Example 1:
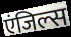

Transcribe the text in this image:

एंजिल्स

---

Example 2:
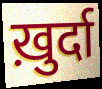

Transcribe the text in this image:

ख़ुर्दा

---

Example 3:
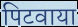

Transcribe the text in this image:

पिटवाया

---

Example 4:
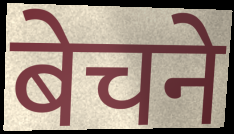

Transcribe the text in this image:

बेचने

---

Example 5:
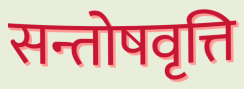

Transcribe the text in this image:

सन्तोषवृत्ति